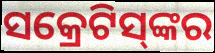
ସକ୍ରେଟିସ୍‌ଙ୍କର